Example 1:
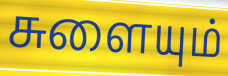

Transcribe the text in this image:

சுளையும்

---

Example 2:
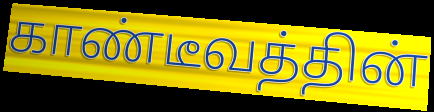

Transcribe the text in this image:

காண்டீவத்தின்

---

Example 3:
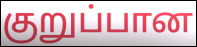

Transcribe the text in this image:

குறுப்பான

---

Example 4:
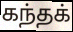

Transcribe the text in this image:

கந்தக்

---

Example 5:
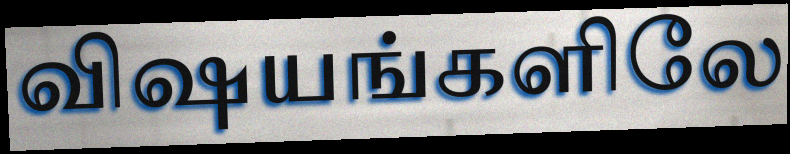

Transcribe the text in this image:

விஷயங்களிலே